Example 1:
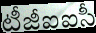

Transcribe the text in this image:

టీజీఐఐసీ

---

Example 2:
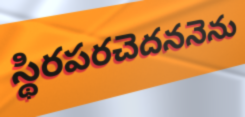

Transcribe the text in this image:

స్థిరపరచెదననెను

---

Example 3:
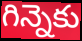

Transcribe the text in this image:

గిన్నెకు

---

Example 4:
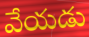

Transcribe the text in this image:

వేయడు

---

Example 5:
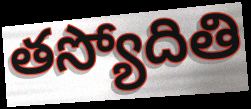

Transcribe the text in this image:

తస్యోదితి